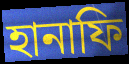
হানাফি